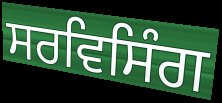
ਸਰਵਿਸਿੰਗ